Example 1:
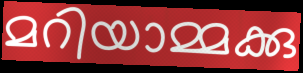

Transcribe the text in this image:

മറിയാമ്മക്കു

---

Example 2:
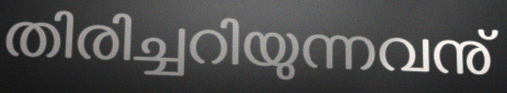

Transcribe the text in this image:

തിരിച്ചറിയുന്നവനു്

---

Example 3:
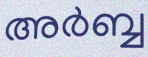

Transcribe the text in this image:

അർബ്ബ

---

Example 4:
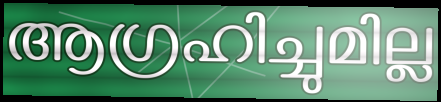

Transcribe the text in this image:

ആഗ്രഹിച്ചുമില്ല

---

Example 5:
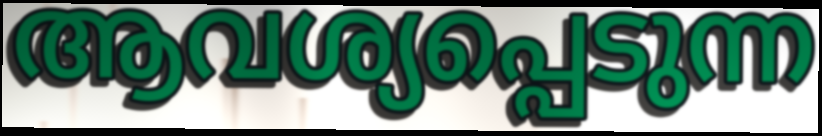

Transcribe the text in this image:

ആവശ്യപ്പെടുന്ന